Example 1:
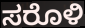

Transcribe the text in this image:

ಸರೊಳಿ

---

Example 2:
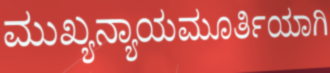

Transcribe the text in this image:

ಮುಖ್ಯನ್ಯಾಯಮೂರ್ತಿಯಾಗಿ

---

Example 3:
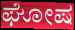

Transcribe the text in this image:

ಘೋಷ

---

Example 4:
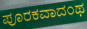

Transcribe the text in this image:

ಪೂರಕವಾದಂಥ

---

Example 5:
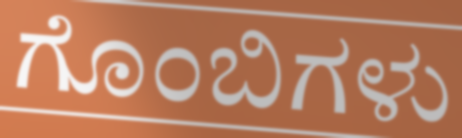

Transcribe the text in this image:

ಗೊಂಬಿಗಳು